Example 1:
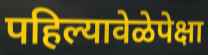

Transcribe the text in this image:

पहिल्यावेळेपेक्षा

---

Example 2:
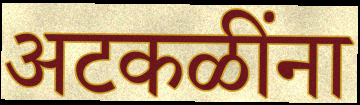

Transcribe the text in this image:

अटकळींना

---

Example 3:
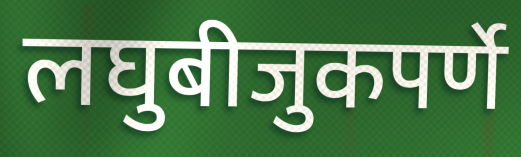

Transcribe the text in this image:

लघुबीजुकपर्णे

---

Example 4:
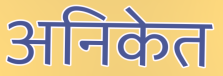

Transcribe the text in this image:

अनिकेत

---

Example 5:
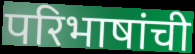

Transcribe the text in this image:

परिभाषांची